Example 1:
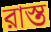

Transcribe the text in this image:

রাস্ত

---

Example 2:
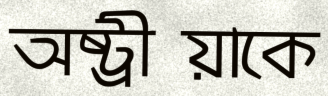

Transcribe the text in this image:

অষ্ট্রীয়াকে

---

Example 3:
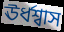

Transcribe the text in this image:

ঊর্ধশ্বাস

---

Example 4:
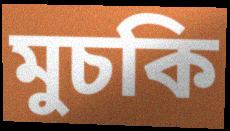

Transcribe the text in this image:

মুচকি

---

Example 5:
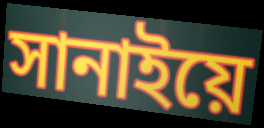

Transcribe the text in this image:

সানাইয়ে